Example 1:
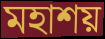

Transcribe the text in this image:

মহাশয়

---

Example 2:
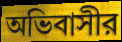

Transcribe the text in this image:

অভিবাসীর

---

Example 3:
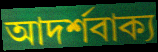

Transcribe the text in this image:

আদর্শবাক্য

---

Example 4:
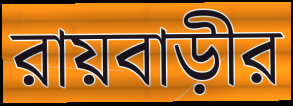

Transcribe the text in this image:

রায়বাড়ীর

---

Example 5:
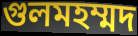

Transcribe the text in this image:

গুলমহম্মদ